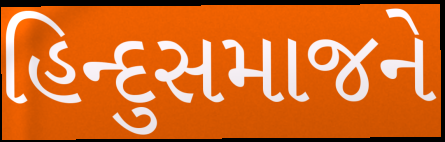
હિન્દુસમાજને